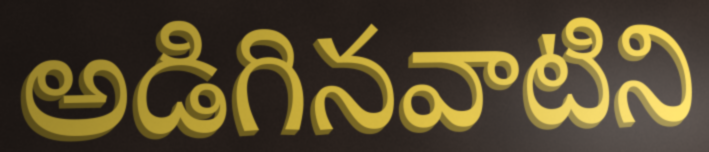
అడిగినవాటిని